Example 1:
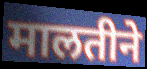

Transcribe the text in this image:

मालतीने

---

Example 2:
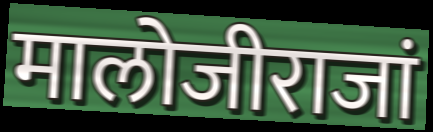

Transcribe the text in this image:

मालोजीराजां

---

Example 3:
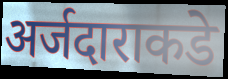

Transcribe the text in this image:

अर्जदाराकडे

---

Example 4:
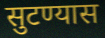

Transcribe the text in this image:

सुटण्यास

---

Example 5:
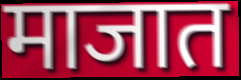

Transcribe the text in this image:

माजात